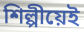
শিল্পীয়েই